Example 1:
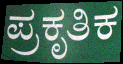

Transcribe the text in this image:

ಪ್ರಕೃತಿಕ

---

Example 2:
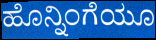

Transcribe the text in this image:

ಹೊನ್ನಿಂಗೆಯೂ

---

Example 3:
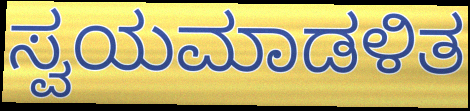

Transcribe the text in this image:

ಸ್ವಯಮಾಡಳಿತ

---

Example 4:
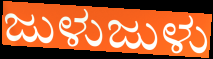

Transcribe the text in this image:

ಜುಳುಜುಳು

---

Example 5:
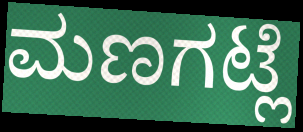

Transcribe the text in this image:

ಮಣಗಟ್ಲೆ